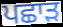
ਪਛਾੜ